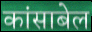
कांसाबेल